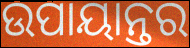
ଉପାୟାନ୍ତର